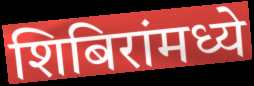
शिबिरांमध्ये